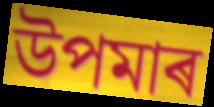
উপমাৰ